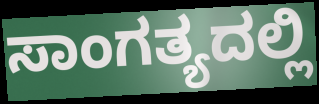
ಸಾಂಗತ್ಯದಲ್ಲಿ